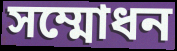
সম্মোধন